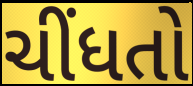
ચીંધતો